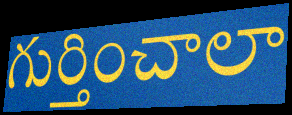
గుర్తించాలా